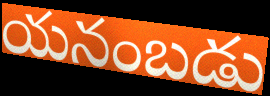
యనంబడు